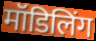
मॉडिलिंग